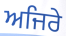
ਅਜਿਰੇ